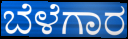
ಬೆಳೆಗಾರ